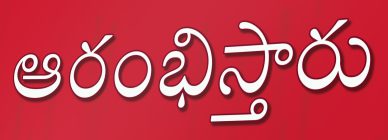
ఆరంభిస్తారు